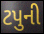
ટપુની